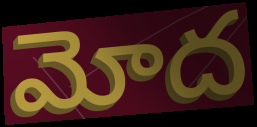
మోద